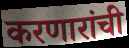
करणारांची